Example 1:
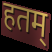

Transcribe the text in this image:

हतम्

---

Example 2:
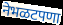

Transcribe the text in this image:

नेभळटपणा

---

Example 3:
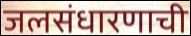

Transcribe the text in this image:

जलसंधारणाची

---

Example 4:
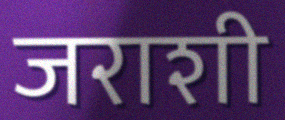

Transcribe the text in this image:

जराशी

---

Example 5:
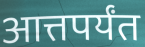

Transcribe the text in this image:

आत्तपर्यंत